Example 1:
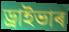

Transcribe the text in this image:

ড্ৰাইভাৰ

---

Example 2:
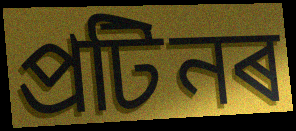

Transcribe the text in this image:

প্ৰটিনৰ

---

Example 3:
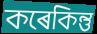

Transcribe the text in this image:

কৰেকিন্তু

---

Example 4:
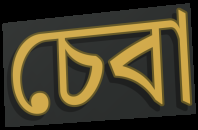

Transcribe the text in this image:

চেবা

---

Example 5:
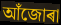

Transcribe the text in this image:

আঁজোৰা